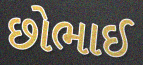
છોભાઈ